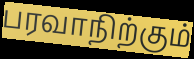
பரவாநிற்கும்